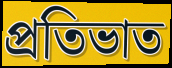
প্রতিভাত